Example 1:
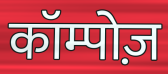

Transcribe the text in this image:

कॉम्पोज़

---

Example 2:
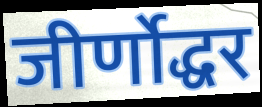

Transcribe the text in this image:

जीर्णोद्धर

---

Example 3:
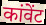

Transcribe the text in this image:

कांवेंट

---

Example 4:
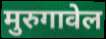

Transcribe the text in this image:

मुरुगावेल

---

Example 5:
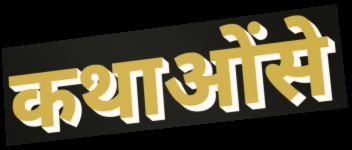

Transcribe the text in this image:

कथाओंसे